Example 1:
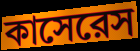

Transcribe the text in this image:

কাসেরেস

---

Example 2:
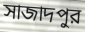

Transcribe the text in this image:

সাজাদপুর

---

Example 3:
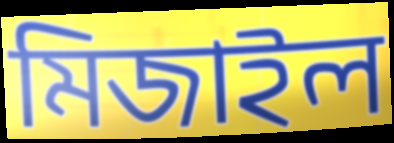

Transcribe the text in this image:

মিজাইল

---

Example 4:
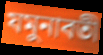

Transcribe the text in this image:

যমুনাবতী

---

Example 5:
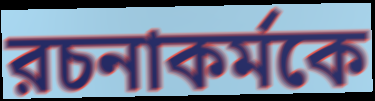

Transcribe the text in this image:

রচনাকর্মকে